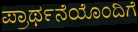
ಪ್ರಾರ್ಥನೆಯೊಂದಿಗೆ